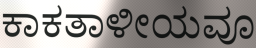
ಕಾಕತಾಳೀಯವೂ